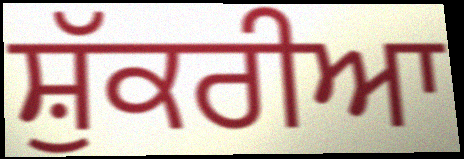
ਸ਼ੁੱਕਰੀਆ